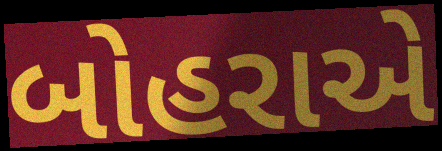
બોહરાએ